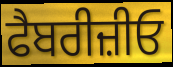
ਫੈਬਰੀਜ਼ੀਓ